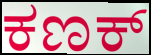
ಕಣಕ್